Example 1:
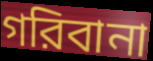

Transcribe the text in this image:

গরিবানা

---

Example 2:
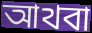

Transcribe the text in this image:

আথবা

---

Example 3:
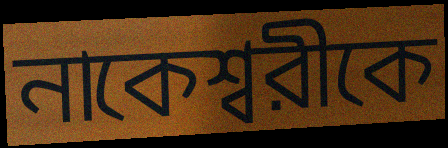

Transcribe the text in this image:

নাকেশ্বরীকে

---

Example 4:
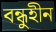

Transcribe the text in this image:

বন্ধুহীন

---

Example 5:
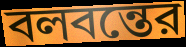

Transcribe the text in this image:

বলবন্তের